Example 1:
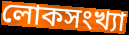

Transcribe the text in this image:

লোকসংখ্যা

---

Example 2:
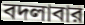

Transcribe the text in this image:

বদলাবার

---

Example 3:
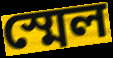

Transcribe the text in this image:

স্মেল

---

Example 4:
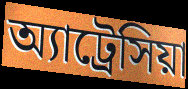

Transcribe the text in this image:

অ্যাট্রেসিয়া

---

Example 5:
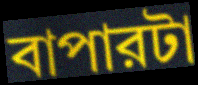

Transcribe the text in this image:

বাপারটা